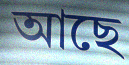
আছে